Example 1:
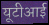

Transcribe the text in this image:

यूटीआई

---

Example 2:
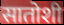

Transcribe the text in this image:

सातोशी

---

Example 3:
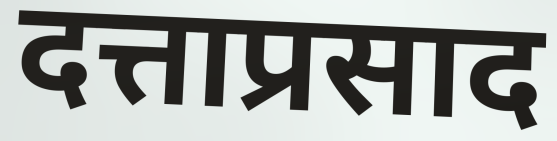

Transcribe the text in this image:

दत्ताप्रसाद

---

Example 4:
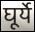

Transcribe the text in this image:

घूर्ये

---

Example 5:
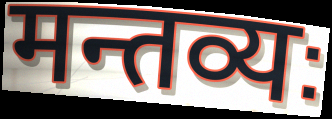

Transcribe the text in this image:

मन्तव्यः